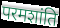
परमशांति